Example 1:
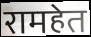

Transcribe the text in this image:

रामहेत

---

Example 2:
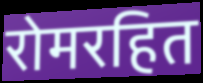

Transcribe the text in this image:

रोमरहित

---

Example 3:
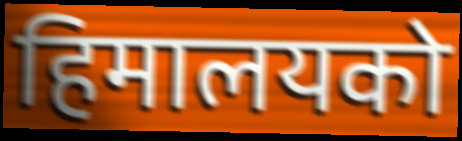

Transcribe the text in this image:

हिमालयको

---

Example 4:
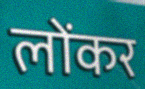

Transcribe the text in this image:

लोंकर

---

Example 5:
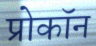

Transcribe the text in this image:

प्रोकॉन